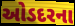
ઓડદરના